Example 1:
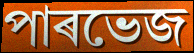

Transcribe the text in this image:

পাৰভেজ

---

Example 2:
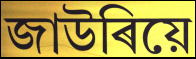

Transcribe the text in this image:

জাউৰিয়ে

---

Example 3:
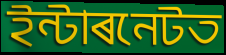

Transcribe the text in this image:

ইন্টাৰনেটত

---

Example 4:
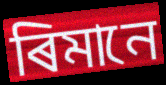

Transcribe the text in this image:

ৰিমানে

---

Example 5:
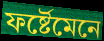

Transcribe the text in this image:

ফৰ্ষ্টেমেনে